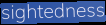
sightedness